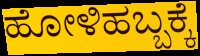
ಹೋಳಿಹಬ್ಬಕ್ಕೆ